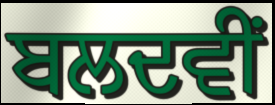
ਬਲਦਵੀਂ